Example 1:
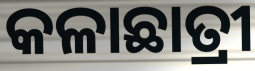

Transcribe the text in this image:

କଳାଛାତ୍ରୀ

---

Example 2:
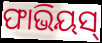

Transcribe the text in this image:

ଫାଭିୟସ୍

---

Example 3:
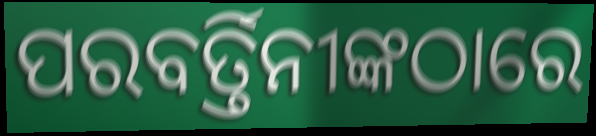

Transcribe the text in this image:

ପରବର୍ତ୍ତିନୀଙ୍କଠାରେ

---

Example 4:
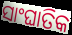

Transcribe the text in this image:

ସାଂଘାତିକ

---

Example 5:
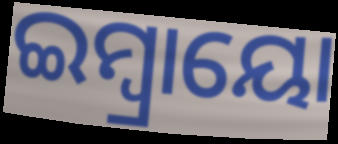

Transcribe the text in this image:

ଇମ୍ବ୍ରାୟୋ